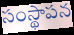
సంస్థాపన